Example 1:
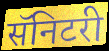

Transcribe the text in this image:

सॅनिटरी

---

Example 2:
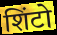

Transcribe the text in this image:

शिंटो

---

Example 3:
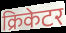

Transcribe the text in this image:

क्रिकेटर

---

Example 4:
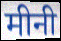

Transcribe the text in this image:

मीनी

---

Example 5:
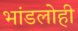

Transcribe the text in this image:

भांडलोही